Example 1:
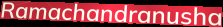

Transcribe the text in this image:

Ramachandranusha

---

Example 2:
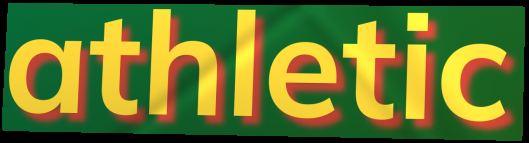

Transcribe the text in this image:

athletic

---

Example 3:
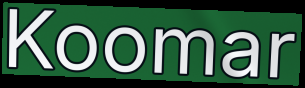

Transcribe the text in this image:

Koomar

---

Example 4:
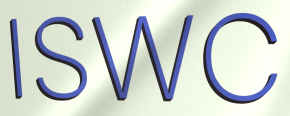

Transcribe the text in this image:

ISWC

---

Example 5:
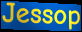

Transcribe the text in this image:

Jessop